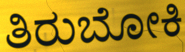
ತಿರುಬೋಕಿ